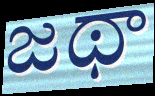
జథా